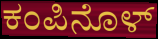
ಕಂಪಿನೊಳ್